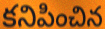
కనిపించిన